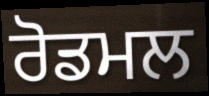
ਰੋਡਮਲ